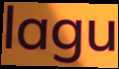
lagu